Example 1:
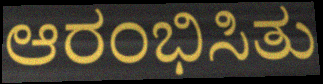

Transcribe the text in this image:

ಆರಂಭಿಸಿತು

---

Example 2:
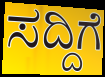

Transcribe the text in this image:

ಸದ್ದಿಗೆ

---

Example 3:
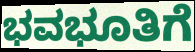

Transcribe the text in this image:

ಭವಭೂತಿಗೆ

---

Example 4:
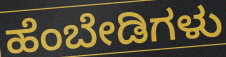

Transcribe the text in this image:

ಹೆಂಬೇಡಿಗಳು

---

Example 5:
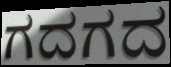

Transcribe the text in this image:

ಗದಗದ